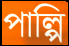
পাল্পি